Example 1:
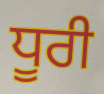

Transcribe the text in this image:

ਧੂਰੀ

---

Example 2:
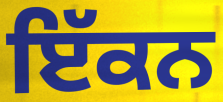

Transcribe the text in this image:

ਇੱਕਨ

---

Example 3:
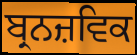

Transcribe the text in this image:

ਬ੍ਰਨਜ਼ਵਿਕ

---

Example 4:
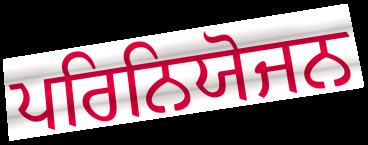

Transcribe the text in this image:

ਪਰਿਨਿਯੋਜਨ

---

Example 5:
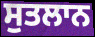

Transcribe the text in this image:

ਸੁਤਲਾਨ